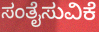
ಸಂತೈಸುವಿಕೆ